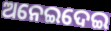
ଅନେଇଦେଇ